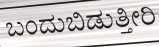
ಬಂದುಬಿಡುತ್ತೀರಿ